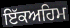
ਇੱਕਅਹਿਮ